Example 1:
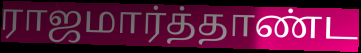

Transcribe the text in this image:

ராஜமார்த்தாண்ட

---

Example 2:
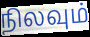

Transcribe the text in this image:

நிலவும்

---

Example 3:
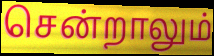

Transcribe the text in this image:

சென்றாலும்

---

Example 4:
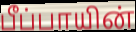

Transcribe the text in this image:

பீப்பாயின்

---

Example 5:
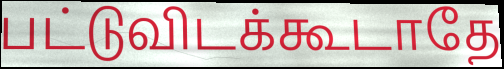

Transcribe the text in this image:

பட்டுவிடக்கூடாதே